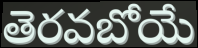
తెరవబోయే